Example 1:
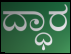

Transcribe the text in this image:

ದ್ಧಾರ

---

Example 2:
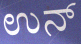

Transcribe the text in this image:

ಉನ್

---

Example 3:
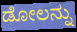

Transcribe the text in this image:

ಡೋಲನ್ನು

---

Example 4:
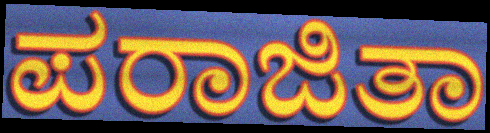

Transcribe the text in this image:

ಪರಾಜಿತಾ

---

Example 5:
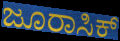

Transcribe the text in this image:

ಜೂರಾಸಿಕ್